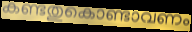
കണ്ടതുകൊണ്ടാവണം